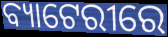
ବ୍ୟାଟେରୀରେ